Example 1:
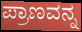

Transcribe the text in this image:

ಪ್ರಾಣವನ್ನ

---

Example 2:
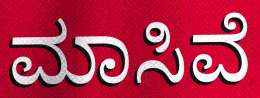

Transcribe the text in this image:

ಮಾಸಿವೆ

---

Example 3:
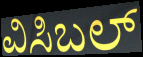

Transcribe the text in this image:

ವಿಸಿಬಲ್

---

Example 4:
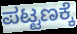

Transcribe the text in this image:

ಪಟ್ಟಣಕ್ಕೆ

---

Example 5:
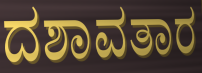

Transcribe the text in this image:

ದಶಾವತಾರ